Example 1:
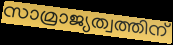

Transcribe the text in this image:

സാമ്രാജ്യത്വത്തിന്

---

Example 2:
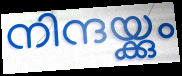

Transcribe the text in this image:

നിന്ദയ്ക്കും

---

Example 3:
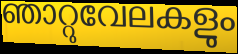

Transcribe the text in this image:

ഞാറ്റുവേലകളും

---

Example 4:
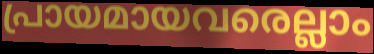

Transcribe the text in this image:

പ്രായമായവരെല്ലാം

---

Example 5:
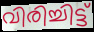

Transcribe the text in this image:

വിരിച്ചിട്ട്